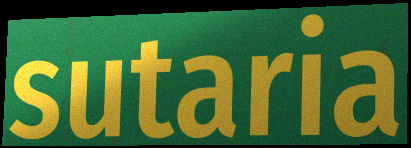
sutaria